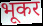
भूकर